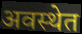
अवस्थेत